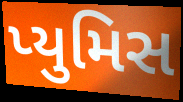
પ્યુમિસ